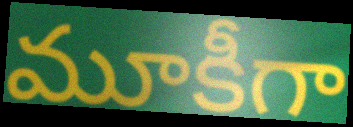
మూకీగా